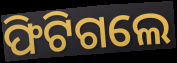
ଫିଟିଗଲେ